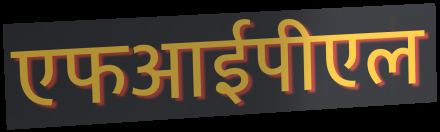
एफआईपीएल